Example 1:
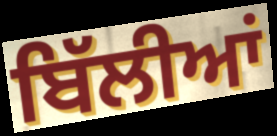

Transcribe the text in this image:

ਬਿੱਲੀਆਂ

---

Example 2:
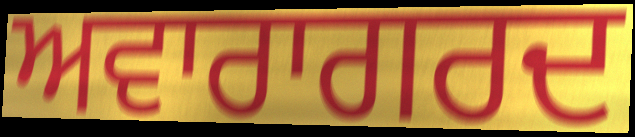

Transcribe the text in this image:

ਅਵਾਰਾਗਰਦ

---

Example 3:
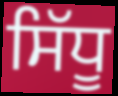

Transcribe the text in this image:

ਸਿੱਧੂ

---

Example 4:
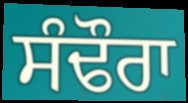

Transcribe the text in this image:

ਸੰਢੌਰਾ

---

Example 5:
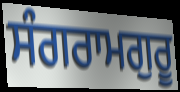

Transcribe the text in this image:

ਸੰਗਰਾਮਗੁਰੂ